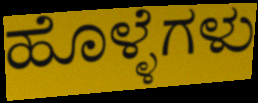
ಹೊಳ್ಳೆಗಳು